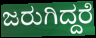
ಜರುಗಿದ್ದರೆ